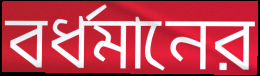
বর্ধমানের